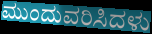
ಮುಂದುವರಿಸಿದಳು